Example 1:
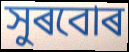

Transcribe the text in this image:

সুৰবোৰ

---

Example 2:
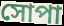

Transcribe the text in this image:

সোপা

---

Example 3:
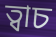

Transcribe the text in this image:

ত্বাচ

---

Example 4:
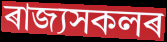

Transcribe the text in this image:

ৰাজ্যসকলৰ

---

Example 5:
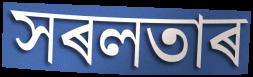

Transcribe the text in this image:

সৰলতাৰ